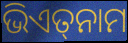
ଭିଏତ୍‌ନାମ